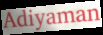
Adiyaman